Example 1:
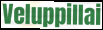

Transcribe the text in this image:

Veluppillai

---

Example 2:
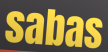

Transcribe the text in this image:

sabas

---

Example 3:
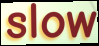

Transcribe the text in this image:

slow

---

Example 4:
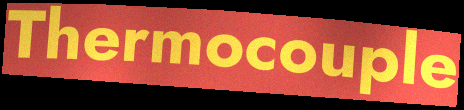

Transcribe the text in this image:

Thermocouple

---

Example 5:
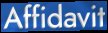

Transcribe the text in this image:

Affidavit